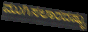
ಮುಗಿಸಲಾರದಷ್ಟು